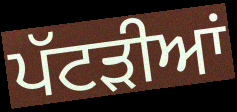
ਪੱਟੜੀਆਂ